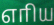
எரிய